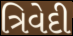
ત્રિવેદી